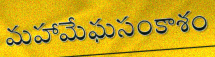
మహామేఘసంకాశం